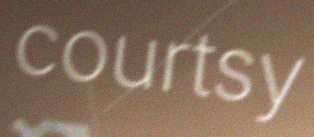
courtsy